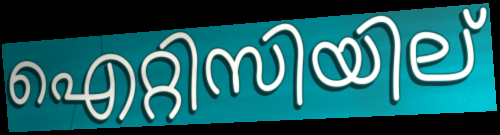
ഐറ്റിസിയില്